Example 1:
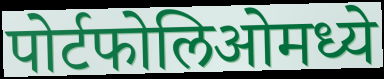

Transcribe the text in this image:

पोर्टफोलिओमध्ये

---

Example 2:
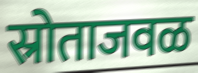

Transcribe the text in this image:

स्रोताजवळ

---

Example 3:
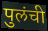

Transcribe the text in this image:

पुलंची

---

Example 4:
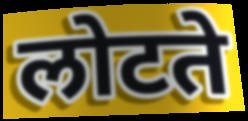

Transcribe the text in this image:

लोटते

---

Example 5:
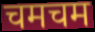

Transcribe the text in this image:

चमचम